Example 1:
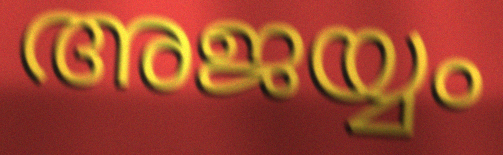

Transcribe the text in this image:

അജയ്യം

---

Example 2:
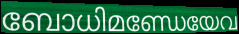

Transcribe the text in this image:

ബോധിമണ്ഡേയേവ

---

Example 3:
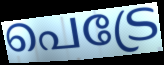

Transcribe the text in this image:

പെട്രേ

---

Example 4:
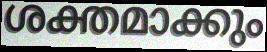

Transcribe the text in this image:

ശക്തമാക്കും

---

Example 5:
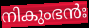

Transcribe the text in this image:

നികുംഭൻഃ